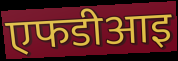
एफडीआइ